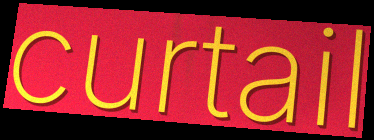
curtail